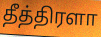
தீத்திரளா